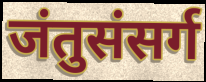
जंतुसंसर्ग